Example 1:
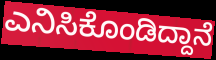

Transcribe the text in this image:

ಎನಿಸಿಕೊಂಡಿದ್ದಾನೆ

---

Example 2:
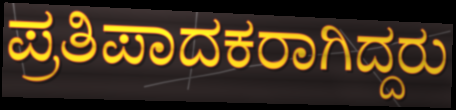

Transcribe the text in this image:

ಪ್ರತಿಪಾದಕರಾಗಿದ್ದರು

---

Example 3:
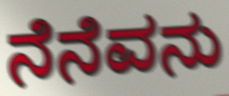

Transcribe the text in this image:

ನೆನೆವನು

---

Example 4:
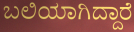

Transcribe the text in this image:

ಬಲಿಯಾಗಿದ್ದಾರೆ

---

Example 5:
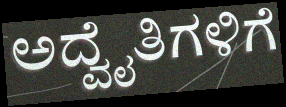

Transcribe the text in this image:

ಅದ್ವೈತಿಗಳಿಗೆ